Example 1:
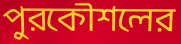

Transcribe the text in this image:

পুরকৌশলের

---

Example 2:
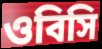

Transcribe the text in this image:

ওবিসি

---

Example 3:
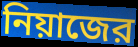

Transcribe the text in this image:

নিয়াজের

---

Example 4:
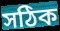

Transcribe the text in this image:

সঠিক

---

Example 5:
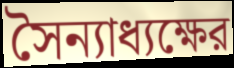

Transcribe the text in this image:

সৈন্যাধ্যক্ষের